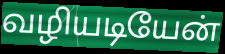
வழியடியேன்